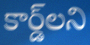
కార్డ్‌లని